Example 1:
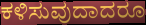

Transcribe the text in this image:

ಕಳಿಸುವುದಾದರೂ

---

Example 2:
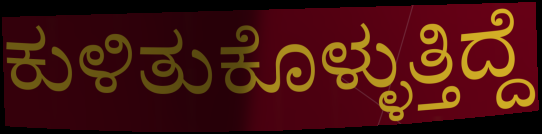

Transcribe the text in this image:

ಕುಳಿತುಕೊಳ್ಳುತ್ತಿದ್ದೆ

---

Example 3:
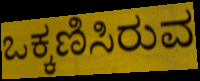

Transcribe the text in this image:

ಒಕ್ಕಣಿಸಿರುವ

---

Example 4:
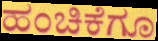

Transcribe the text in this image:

ಹಂಚಿಕೆಗೂ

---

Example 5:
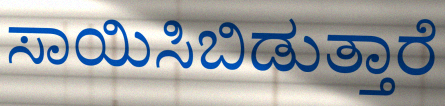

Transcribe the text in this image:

ಸಾಯಿಸಿಬಿಡುತ್ತಾರೆ